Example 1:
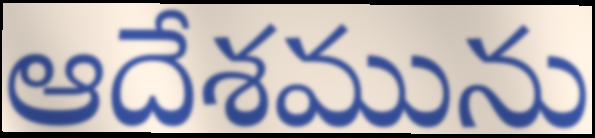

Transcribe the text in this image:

ఆదేశమును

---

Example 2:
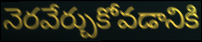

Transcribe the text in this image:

నెరవేర్చుకోవడానికి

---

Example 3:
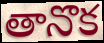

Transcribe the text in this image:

తానొక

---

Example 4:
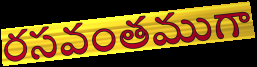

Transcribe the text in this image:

రసవంతముగా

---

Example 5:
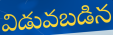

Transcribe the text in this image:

విడువబడిన